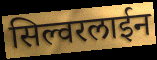
सिल्वरलाईन